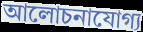
আলোচনাযোগ্য